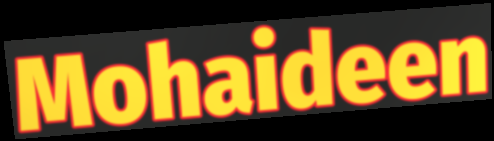
Mohaideen